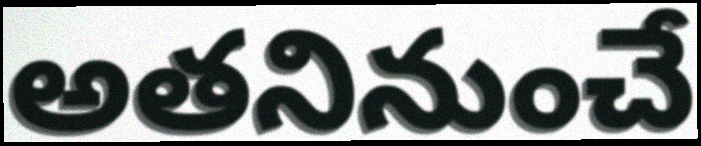
అతనినుంచే